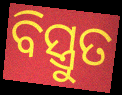
ବିସ୍ତ୍ରୁତ